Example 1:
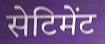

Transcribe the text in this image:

सेटिमेंट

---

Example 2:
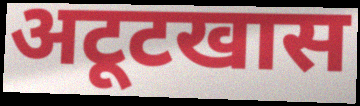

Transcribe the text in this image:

अटूटखास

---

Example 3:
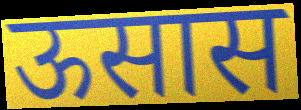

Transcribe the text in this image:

ऊसास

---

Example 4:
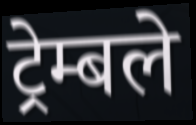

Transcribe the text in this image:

ट्रेम्बले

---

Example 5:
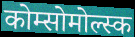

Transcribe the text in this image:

कोम्सोमोल्स्क